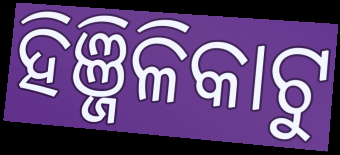
ହିଞ୍ଜିଳିକାଟୁ